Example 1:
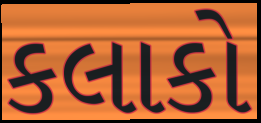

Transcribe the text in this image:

કલાકો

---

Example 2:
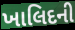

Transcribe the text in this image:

ખાલિદની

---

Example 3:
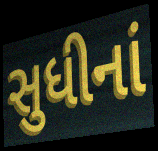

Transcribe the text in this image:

સુધીનાં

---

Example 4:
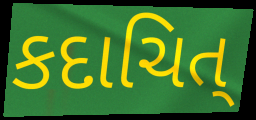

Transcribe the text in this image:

કદાચિત્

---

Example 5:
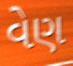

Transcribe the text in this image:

વેણ